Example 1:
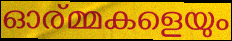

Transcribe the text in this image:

ഓര്മ്മകളെയും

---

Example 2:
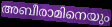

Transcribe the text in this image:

അബീരാമിനെയും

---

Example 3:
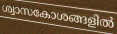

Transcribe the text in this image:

ശ്വാസകോശങ്ങളിൽ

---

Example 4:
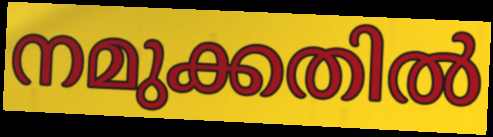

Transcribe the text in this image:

നമുക്കതിൽ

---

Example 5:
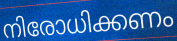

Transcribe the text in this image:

നിരോധിക്കണം